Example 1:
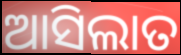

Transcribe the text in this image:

ଆସିଲାତ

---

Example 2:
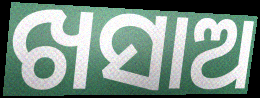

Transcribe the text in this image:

ଖସାଅ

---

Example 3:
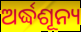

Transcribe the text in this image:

ଅର୍ଦ୍ଧଶୂନ୍ୟ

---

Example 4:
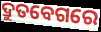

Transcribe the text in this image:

ଦ୍ରୁତବେଗରେ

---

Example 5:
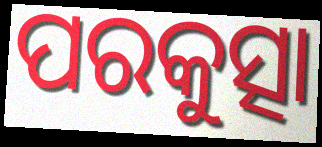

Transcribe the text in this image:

ପରକୁତ୍ସା